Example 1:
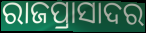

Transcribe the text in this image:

ରାଜପ୍ରାସାଦର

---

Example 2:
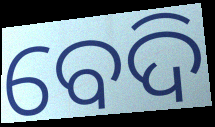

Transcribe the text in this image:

ବେଦି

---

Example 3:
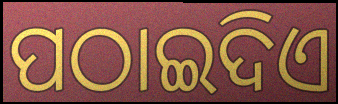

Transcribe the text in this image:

ପଠାଇଦିଏ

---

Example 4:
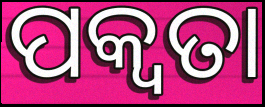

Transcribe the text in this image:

ପକ୍ୱତା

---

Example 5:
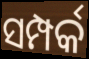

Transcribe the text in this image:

ସମ୍ପର୍କ